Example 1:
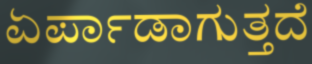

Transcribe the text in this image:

ಏರ್ಪಾಡಾಗುತ್ತದೆ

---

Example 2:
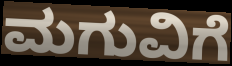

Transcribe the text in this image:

ಮಗುವಿಗೆ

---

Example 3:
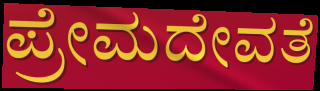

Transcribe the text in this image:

ಪ್ರೇಮದೇವತೆ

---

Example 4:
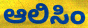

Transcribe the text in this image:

ಆಲಿಸಿಂ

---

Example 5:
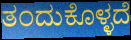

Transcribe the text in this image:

ತಂದುಕೊಳ್ಳದೆ